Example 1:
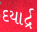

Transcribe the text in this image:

દયાર્દ્ર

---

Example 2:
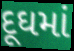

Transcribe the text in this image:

દૂઘમાં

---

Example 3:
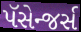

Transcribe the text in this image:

પૅસેન્જર્સ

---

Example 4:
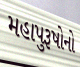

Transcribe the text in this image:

મહાપુરૂષોનો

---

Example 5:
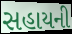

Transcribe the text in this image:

સહાયની